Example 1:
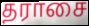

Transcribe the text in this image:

தராசை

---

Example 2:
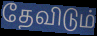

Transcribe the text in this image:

தேவிடும்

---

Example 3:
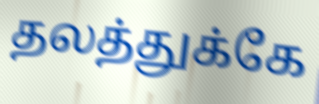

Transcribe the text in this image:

தலத்துக்கே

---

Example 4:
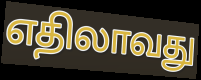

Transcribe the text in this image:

எதிலாவது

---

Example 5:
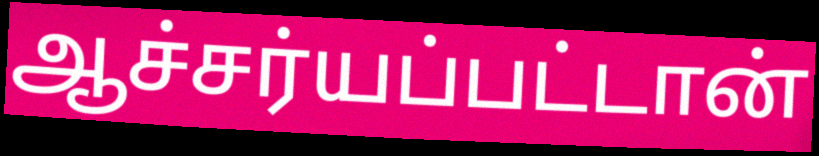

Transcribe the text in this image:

ஆச்சர்யப்பட்டான்